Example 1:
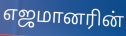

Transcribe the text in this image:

எஜமானரின்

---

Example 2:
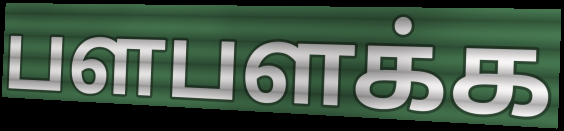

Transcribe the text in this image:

பளபளக்க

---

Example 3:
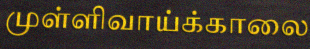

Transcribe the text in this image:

முள்ளிவாய்க்காலை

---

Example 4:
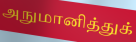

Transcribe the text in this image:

அநுமானித்துக்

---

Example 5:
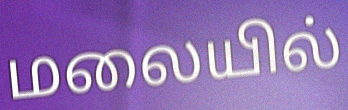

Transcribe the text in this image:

மலையில்